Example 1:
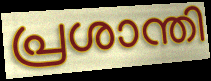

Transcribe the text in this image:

പ്രശാന്തി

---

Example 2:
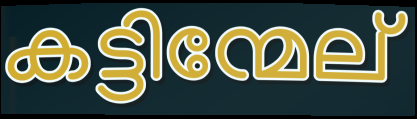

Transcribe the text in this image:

കട്ടിന്മേല്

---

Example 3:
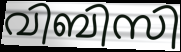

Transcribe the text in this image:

വിബിസി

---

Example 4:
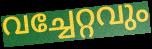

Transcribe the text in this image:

വച്ചേറ്റവും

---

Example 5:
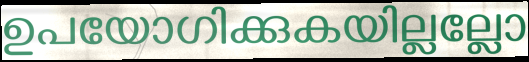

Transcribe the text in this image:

ഉപയോഗിക്കുകയില്ലല്ലോ